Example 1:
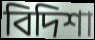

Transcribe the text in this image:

বিদিশা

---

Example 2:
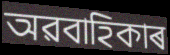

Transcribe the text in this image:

অৱবাহিকাৰ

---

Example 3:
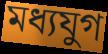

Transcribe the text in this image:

মধ্যযুগ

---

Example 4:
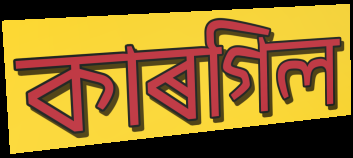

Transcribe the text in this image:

কাৰগিল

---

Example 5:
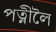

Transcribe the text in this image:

পত্নীলৈ